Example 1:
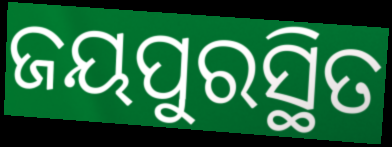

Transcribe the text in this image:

ଜୟପୁରସ୍ଥିତ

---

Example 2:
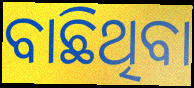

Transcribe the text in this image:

ବାଛିଥିବା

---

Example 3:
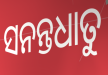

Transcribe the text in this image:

ସନନ୍ତଧାତୁ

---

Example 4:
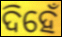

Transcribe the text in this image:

ଦିହେଁ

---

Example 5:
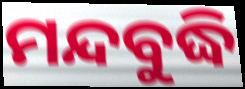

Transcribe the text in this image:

ମନ୍ଦବୁଦ୍ଧି